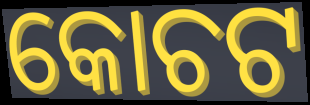
କୋଚଟ